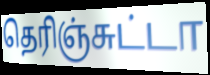
தெரிஞ்சுட்டா